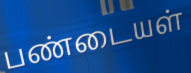
பண்டையள்